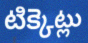
టిక్కెట్లు